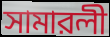
সামারলী